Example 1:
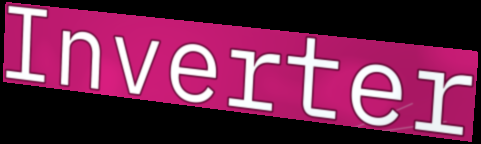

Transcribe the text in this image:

Inverter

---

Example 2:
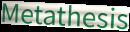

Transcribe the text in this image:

Metathesis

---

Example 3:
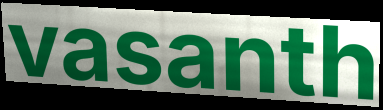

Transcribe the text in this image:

vasanth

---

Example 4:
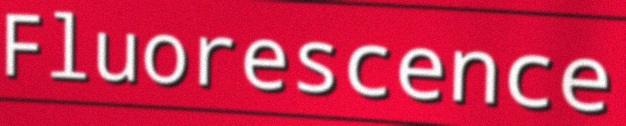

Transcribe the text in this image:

Fluorescence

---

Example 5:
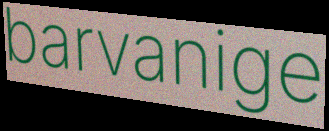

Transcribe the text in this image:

barvanige